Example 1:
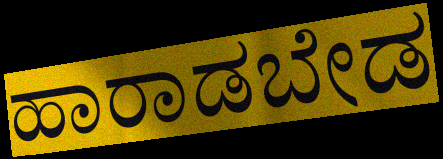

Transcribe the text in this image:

ಹಾರಾಡಬೇಡ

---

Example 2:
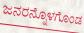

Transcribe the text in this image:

ಜನರನ್ನೊಳಗೊಂಡ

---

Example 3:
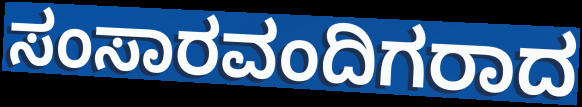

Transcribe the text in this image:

ಸಂಸಾರವಂದಿಗರಾದ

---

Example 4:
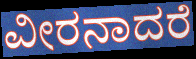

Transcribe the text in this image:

ವೀರನಾದರೆ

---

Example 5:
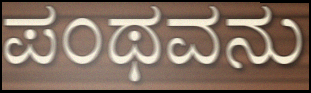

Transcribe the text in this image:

ಪಂಥವನು